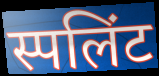
स्पलिंट